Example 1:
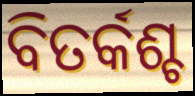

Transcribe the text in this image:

ବିତର୍କଶ୍ଚ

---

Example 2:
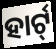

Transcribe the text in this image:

ହାର୍ଟ୍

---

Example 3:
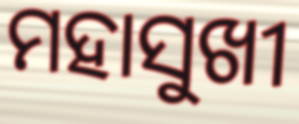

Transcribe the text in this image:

ମହାସୁଖୀ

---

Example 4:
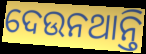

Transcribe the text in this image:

ଦେଉନଥାନ୍ତି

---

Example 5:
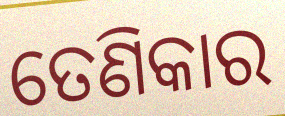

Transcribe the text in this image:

ତେଣିକାର